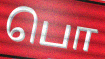
பொ